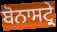
ਬੋਨਾਸਟ੍ਰੇ